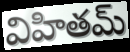
విహితమ్